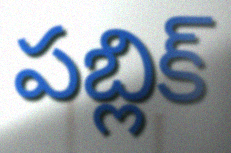
పబ్లిక్